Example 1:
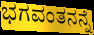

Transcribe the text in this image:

ಭಗವಂತನನ್ನೆ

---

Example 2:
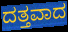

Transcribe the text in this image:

ದತ್ತವಾದ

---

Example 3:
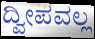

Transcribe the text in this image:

ದ್ವೀಪವಲ್ಲ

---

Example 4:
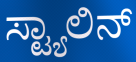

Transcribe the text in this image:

ಸ್ಟ್ಯಾಲಿನ್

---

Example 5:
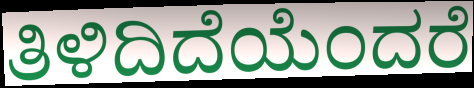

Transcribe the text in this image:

ತಿಳಿದಿದೆಯೆಂದರೆ